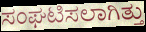
ಸಂಘಟಿಸಲಾಗಿತ್ತು